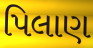
પિલાણ